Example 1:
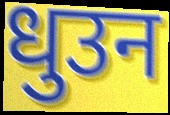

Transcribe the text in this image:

धुउन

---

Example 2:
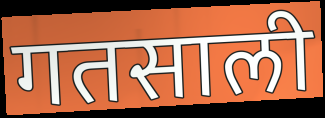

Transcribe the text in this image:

गतसाली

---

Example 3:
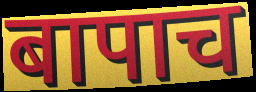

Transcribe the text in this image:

बापाच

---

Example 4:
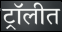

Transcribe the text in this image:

ट्रॉलीत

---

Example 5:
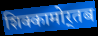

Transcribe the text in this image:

शिक्‍कामोर्तब